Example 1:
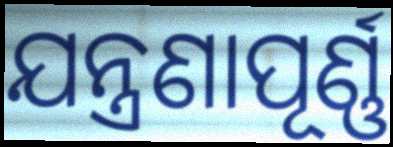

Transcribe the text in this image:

ଯନ୍ତ୍ରଣାପୂର୍ଣ୍ଣ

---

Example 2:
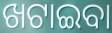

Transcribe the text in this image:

ଖଟାଇବା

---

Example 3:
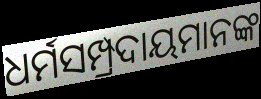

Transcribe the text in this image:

ଧର୍ମସମ୍ପ୍ରଦାୟମାନଙ୍କ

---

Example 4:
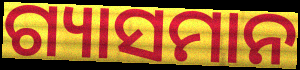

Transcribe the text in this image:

ଗ୍ୟାସମାନ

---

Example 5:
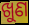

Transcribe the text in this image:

ଖୁଣ